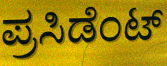
ಪ್ರಸಿಡೆಂಟ್